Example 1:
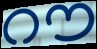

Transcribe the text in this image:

റൗ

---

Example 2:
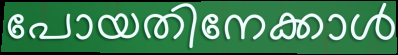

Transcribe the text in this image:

പോയതിനേക്കാൾ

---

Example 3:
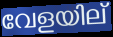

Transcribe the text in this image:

വേളയില്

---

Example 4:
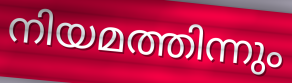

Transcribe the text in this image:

നിയമത്തിന്നും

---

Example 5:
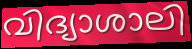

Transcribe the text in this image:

വിദ്യാശാലി